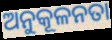
ଅନୁକୂଳନତା